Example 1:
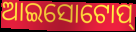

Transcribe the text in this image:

ଆଇସୋଟୋପ୍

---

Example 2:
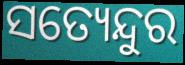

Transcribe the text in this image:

ସତ୍ୟେନ୍ଦୁର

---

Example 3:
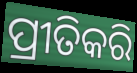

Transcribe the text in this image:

ପ୍ରୀତିକରି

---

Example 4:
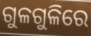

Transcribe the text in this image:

ଗୁଳଗୁଳିରେ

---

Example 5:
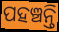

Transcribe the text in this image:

ପହଞ୍ଚନ୍ତି